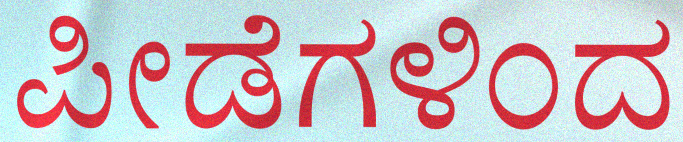
ಪೀಡೆಗಳಿಂದ